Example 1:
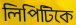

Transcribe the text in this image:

লিপিটিকে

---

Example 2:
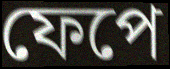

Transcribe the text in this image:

ফেপে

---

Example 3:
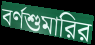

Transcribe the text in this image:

বর্ণশুমারির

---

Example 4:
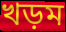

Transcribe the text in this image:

খড়ম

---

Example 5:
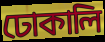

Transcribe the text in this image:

ঢোকালি